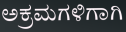
ಅಕ್ರಮಗಳಿಗಾಗಿ